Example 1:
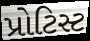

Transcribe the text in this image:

પ્રોટિસ્ટ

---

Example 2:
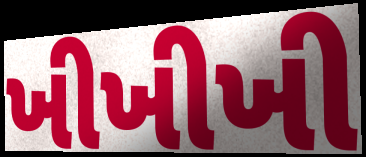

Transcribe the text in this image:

ખીખીખી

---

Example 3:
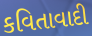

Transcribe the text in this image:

કવિતાવાદી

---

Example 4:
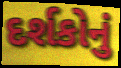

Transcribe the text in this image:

દર્શકોનું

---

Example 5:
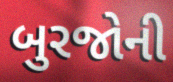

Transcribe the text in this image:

બુરજોની